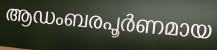
ആഡംബരപൂർണമായ